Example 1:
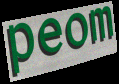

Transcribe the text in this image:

peom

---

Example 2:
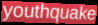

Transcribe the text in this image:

youthquake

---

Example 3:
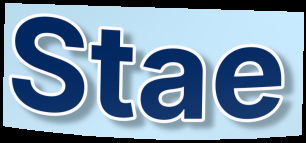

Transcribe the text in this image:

Stae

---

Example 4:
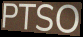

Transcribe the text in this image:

PTSO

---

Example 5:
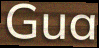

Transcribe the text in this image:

Gua